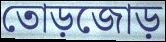
তোড়জোড়